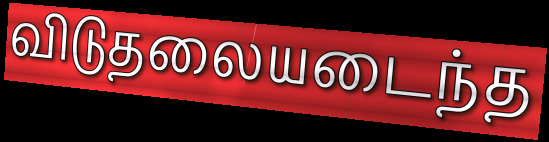
விடுதலையடைந்த